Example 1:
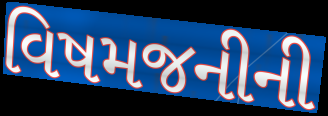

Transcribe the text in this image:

વિષમજનીની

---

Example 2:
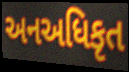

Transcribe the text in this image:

અનઅધિકૃત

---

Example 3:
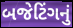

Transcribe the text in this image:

બજેટિંગનું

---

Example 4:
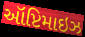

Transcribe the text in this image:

ઑપ્ટિમાઇઝ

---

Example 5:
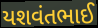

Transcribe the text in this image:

યશવંતભાઈ